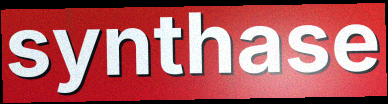
synthase